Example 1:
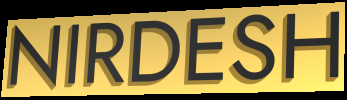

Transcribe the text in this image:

NIRDESH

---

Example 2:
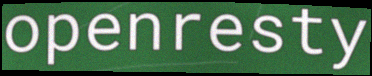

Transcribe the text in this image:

openresty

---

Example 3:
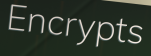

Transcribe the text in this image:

Encrypts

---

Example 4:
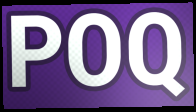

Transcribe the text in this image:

POQ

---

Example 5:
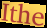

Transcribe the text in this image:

Ithe